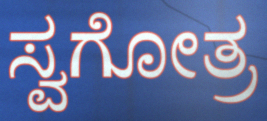
ಸ್ವಗೋತ್ರ